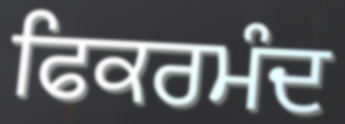
ਫਿਕਰਮੰਦ